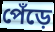
পেঁড়ে